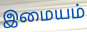
இமையம்